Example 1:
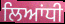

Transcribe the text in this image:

ਲਿਆਂਧੀ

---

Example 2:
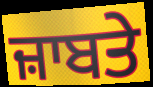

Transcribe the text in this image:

ਜ਼ਾਬਤੇ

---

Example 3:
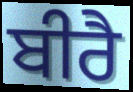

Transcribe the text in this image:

ਬੀਰੈ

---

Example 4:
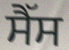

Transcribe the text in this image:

ਸੈੱਸ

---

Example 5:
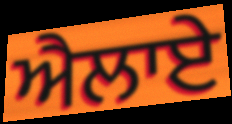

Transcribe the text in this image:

ਐਲਾਏ